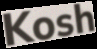
Kosh